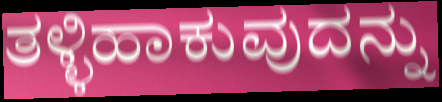
ತಳ್ಳಿಹಾಕುವುದನ್ನು